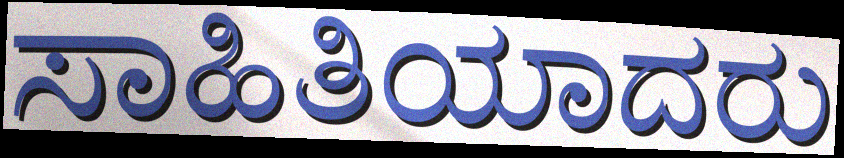
ಸಾಹಿತಿಯಾದರು